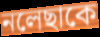
নলেছাকে